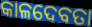
କାଳଦେବତା